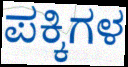
ಪಕ್ಕಿಗಳ